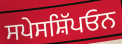
ਸਪੇਸਸ਼ਿੱਪਓਨ